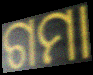
ଗମା